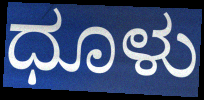
ಧೂಳು